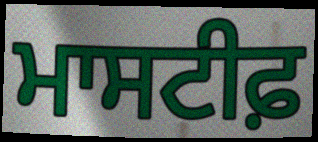
ਮਾਸਟੀਫ਼